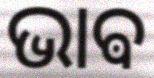
ଭାଵ